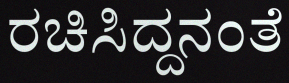
ರಚಿಸಿದ್ದನಂತೆ